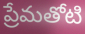
ప్రేమతోటి